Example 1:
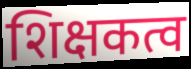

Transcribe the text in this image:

शिक्षकत्व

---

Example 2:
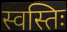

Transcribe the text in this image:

स्वस्तिः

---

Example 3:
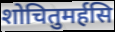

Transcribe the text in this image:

शोचितुमर्हसि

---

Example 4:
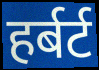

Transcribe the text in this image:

हर्बर्ट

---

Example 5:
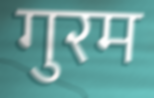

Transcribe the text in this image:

गुरम